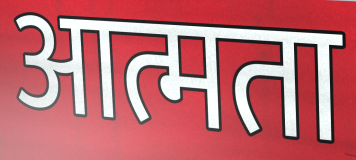
आत्मता